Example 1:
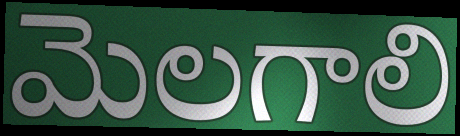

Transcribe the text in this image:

మెలగాలి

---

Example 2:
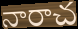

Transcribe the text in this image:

నారాచ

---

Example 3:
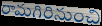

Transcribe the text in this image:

రామగిరినుంచి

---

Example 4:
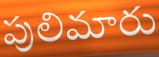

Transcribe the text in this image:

పులిమారు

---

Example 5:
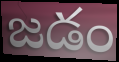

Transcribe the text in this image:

జడం